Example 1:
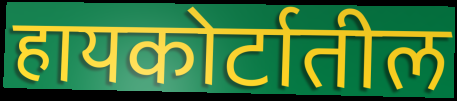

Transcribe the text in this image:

हायकोर्टातील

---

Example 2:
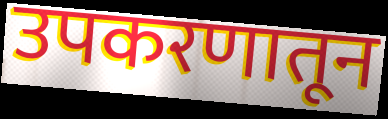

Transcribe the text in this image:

उपकरणातून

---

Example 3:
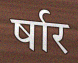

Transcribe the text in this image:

र्षार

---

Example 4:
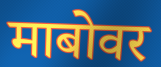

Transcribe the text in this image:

माबोवर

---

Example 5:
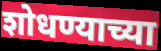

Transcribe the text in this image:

शोधण्याच्या